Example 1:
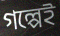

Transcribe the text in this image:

গল্পেই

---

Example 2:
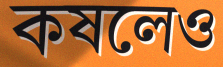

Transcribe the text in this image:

কষলেও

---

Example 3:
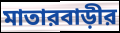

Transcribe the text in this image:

মাতারবাড়ীর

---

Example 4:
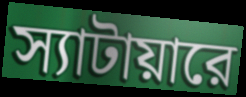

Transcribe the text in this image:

স্যাটায়ারে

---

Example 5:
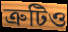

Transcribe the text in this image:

ত্রুটিও